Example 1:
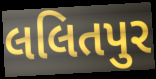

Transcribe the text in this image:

લલિતપુર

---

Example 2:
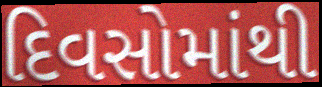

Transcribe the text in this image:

દિવસોમાંથી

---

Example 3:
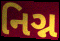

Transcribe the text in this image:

નિગ્ન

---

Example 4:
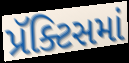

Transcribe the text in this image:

પ્રૅક્ટિસમાં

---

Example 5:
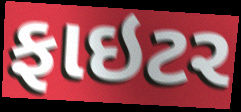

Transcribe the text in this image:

ફાઇટર